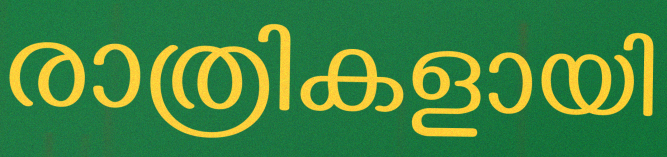
രാത്രികളായി